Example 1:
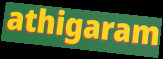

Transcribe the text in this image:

athigaram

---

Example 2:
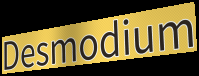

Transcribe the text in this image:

Desmodium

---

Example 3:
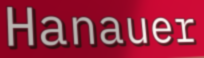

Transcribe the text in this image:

Hanauer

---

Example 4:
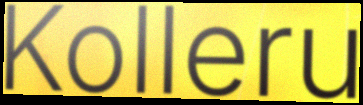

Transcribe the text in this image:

Kolleru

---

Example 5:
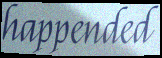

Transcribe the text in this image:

happended